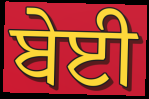
ਬੇਈ